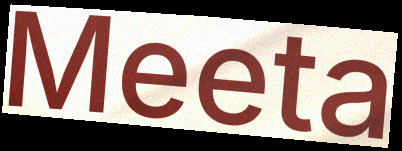
Meeta